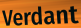
Verdant